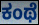
ಕಂಥೆ